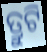
ତ୍ରୁଟି